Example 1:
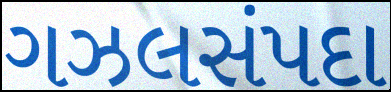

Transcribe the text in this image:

ગઝલસંપદા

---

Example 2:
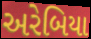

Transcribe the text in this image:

અરેબિયા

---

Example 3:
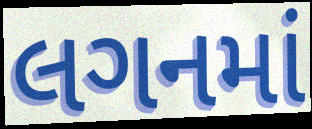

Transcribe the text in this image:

લગનમાં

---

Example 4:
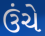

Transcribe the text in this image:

ઉંચે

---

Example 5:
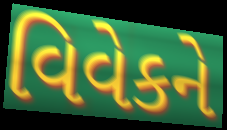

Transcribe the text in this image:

વિવેકને